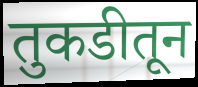
तुकडीतून